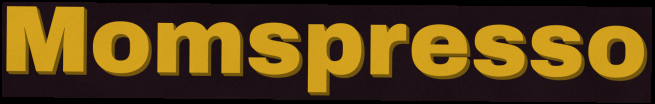
Momspresso